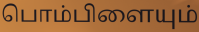
பொம்பிளையும்